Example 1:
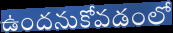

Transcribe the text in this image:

ఉందనుకోవడంలో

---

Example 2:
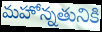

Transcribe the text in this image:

మహోన్నతునికి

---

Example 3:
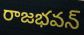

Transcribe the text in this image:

రాజభవన్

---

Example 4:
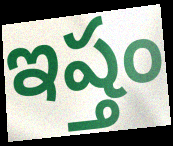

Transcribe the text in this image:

ఇష్తం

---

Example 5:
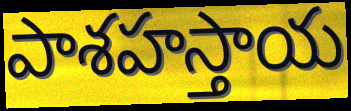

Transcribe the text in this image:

పాశహస్తాయ